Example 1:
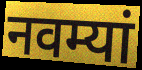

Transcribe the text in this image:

नवम्यां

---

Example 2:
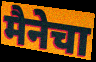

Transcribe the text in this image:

मैनेचा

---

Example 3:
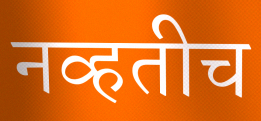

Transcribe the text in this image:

नव्हतीच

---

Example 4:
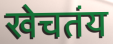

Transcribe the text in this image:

खेचतंय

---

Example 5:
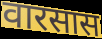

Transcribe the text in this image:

वारसास